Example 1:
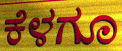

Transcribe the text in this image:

ಕೆಳಗೂ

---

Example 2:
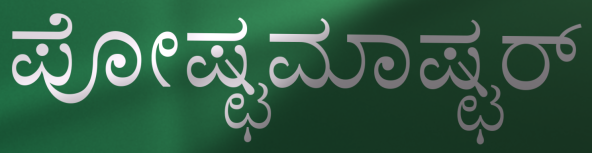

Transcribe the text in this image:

ಪೋಷ್ಟಮಾಷ್ಟರ್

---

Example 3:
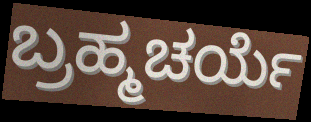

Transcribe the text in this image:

ಬ್ರಹ್ಮಚರ್ಯೆ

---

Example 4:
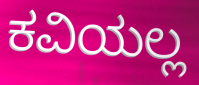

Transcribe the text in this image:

ಕವಿಯಲ್ಲ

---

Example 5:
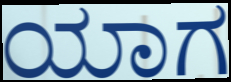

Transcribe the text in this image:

ಯಾಗ